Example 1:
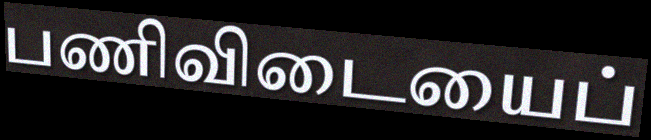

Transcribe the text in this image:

பணிவிடையைப்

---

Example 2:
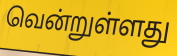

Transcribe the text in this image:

வென்றுள்ளது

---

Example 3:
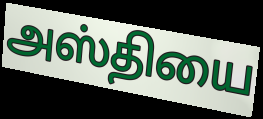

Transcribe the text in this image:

அஸ்தியை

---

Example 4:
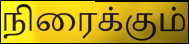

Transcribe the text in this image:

நிரைக்கும்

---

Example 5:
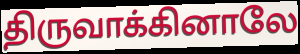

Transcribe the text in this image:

திருவாக்கினாலே